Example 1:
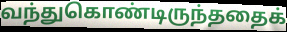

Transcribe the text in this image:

வந்துகொண்டிருந்ததைக்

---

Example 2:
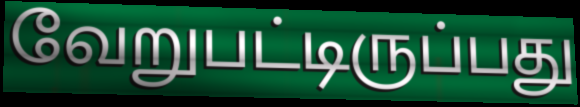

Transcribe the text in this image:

வேறுபட்டிருப்பது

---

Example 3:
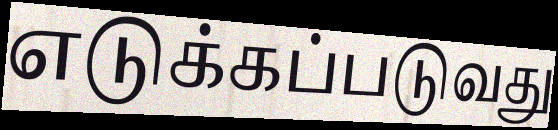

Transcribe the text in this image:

எடுக்கப்படுவது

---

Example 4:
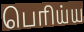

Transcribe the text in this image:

பெரிய்ய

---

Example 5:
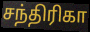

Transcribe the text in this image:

சந்திரிகா